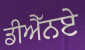
ਡੀਐੱਨਏ